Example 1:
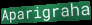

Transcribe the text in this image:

Aparigraha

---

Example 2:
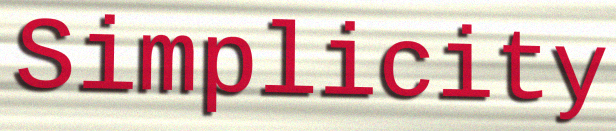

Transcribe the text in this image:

Simplicity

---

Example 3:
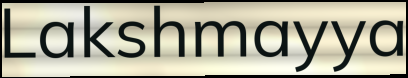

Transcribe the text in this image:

Lakshmayya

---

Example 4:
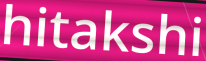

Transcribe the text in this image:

hitakshi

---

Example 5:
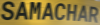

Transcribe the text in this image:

SAMACHAR